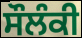
ਸੌਲੰਕੀ